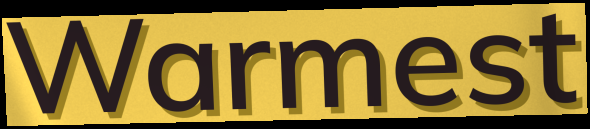
Warmest